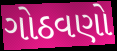
ગોઠવણો